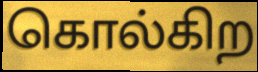
கொல்கிற